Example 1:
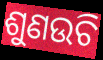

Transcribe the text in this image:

ଶୁଣଉଚି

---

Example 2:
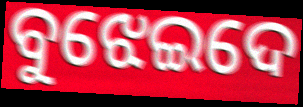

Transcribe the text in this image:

ବୁଝେଇଦେ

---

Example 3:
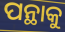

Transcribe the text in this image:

ପନ୍ଥାକୁ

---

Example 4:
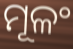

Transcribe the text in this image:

ମୂଳଂ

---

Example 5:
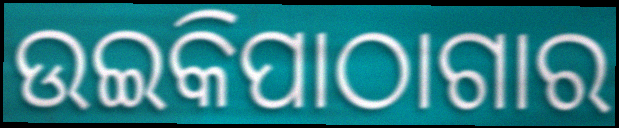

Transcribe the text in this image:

ଉଇକିପାଠାଗାର